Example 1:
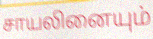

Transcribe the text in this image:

சாயலினையும்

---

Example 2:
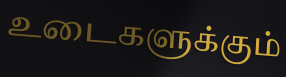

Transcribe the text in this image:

உடைகளுக்கும்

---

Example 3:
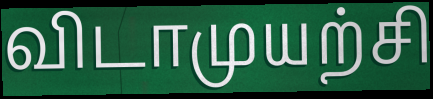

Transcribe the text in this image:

விடாமுயற்சி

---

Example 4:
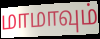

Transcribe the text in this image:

மாமாவும்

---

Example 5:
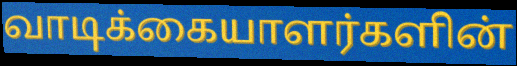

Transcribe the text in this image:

வாடிக்கையாளர்களின்